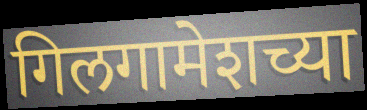
गिलगामेशच्या